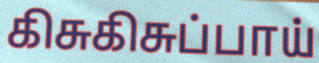
கிசுகிசுப்பாய்